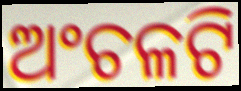
ଅଂଚଳଟି